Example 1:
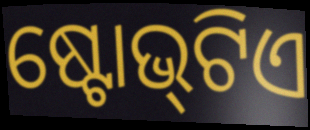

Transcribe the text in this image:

ଷ୍ଟୋଭ୍‌ଟିଏ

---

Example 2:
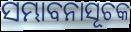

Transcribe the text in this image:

ସମ୍ଭାବନାସୂଚକ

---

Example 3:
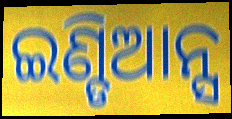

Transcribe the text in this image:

ଇଣ୍ଡିଆନ୍ସ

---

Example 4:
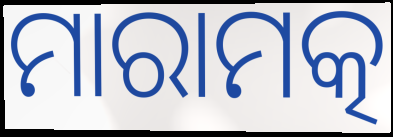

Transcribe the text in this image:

ମାରାମତ୍କ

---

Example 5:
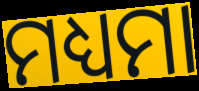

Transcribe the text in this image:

ମଧ୍ୟମା